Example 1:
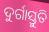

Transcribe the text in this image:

ଦୁର୍ଗାସ୍ତୁତି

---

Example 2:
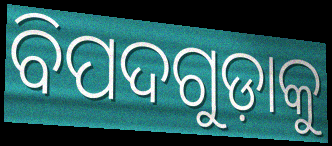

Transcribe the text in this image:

ବିପଦଗୁଡ଼ାକୁ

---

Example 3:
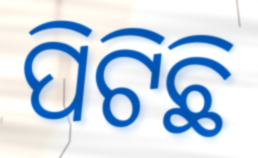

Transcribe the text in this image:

ପିଟିଛି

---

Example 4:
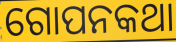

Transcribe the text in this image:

ଗୋପନକଥା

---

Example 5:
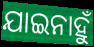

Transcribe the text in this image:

ଯାଇନାହୁଁ